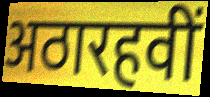
अठारहवीं